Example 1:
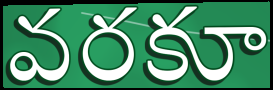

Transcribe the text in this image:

వరకూ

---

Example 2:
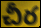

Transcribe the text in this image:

చీర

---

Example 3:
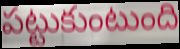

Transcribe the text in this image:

పట్టుకుంటుంది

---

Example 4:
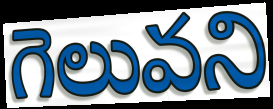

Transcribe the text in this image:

గెలువని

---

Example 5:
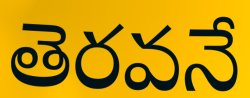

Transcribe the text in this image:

తెరవనే